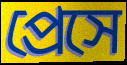
প্রেসে